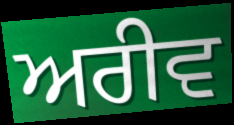
ਅਰੀਵ